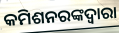
କମିଶନରଙ୍କଦ୍ୱାରା